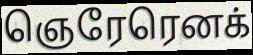
ஞெரேரெனக்